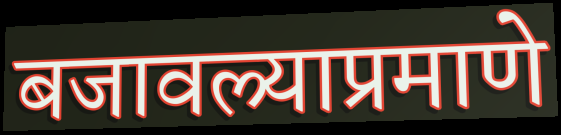
बजावल्याप्रमाणे